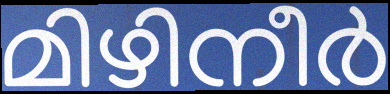
മിഴിനീർ